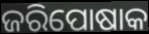
ଜରିପୋଷାକ